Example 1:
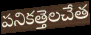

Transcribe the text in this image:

పనికత్తెలచేత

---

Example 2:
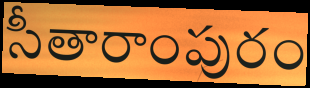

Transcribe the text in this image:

సీతారాంపురం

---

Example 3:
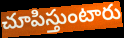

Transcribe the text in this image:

చూపిస్తుంటారు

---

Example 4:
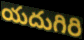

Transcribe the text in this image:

యదుగిరి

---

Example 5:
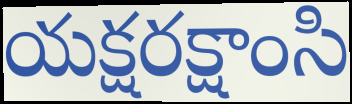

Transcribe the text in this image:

యక్షరక్షాంసి